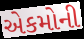
એકમોની